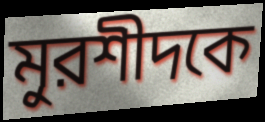
মুরশীদকে